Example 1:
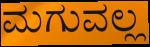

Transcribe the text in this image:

ಮಗುವಲ್ಲ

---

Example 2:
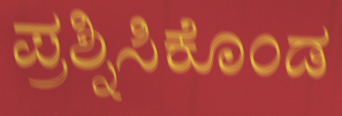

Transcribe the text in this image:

ಪ್ರಶ್ನಿಸಿಕೊಂಡ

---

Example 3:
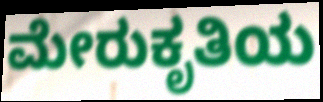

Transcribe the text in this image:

ಮೇರುಕೃತಿಯ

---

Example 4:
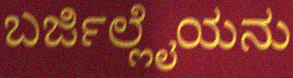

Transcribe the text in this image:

ಬರ್ಜಿಲ್ಲೈಯನು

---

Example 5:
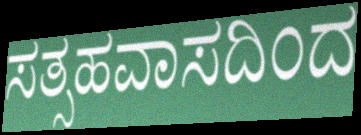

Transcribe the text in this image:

ಸತ್ಸಹವಾಸದಿಂದ